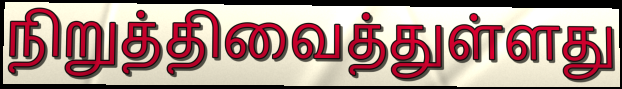
நிறுத்திவைத்துள்ளது